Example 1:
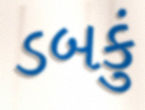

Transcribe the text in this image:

ડબકું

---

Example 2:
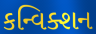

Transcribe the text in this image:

કન્વિક્શન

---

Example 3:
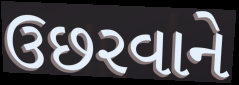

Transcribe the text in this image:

ઉછરવાને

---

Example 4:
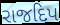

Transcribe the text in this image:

રાજદિપ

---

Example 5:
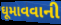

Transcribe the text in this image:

ઘૂમાવવાની